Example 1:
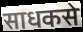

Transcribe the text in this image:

साधकसे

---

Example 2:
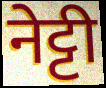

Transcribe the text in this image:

नेट्टी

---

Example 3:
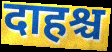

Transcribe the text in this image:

दाहश्च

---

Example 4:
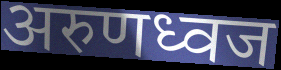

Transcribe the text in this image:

अरुणध्वज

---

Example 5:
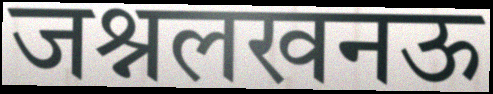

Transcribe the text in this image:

जश्नलखनऊ